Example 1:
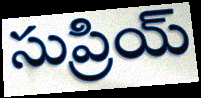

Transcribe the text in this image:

సుప్రియ్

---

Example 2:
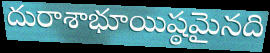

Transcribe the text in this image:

దురాశాభూయిష్ఠమైనది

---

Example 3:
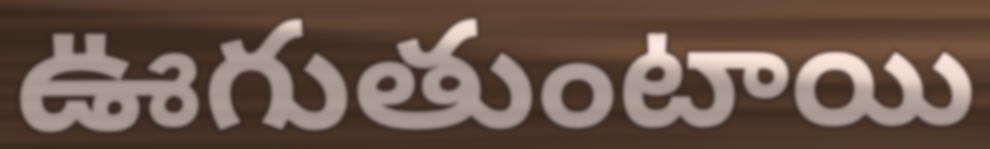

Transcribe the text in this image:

ఊగుతుంటాయి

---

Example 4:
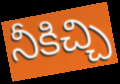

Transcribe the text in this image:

నీకిచ్చి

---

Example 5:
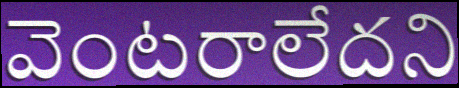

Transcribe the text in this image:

వెంటరాలేదని